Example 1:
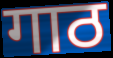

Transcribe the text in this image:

गाठ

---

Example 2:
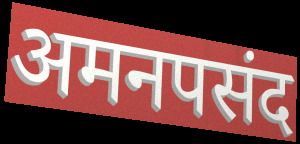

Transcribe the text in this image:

अमनपसंद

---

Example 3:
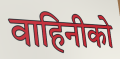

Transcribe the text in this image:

वाहिनीको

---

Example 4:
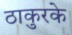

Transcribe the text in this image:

ठाकुरके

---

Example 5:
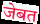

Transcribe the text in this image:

जेबत